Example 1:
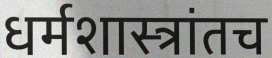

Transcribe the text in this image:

धर्मशास्त्रांतच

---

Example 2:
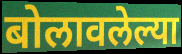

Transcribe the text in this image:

बोलावलेल्या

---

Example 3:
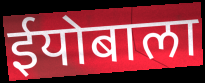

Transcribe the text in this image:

ईयोबाला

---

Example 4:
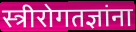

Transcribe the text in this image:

स्त्रीरोगतज्ञांना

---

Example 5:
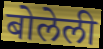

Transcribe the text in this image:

बोलेली